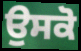
ਉਸਕੋ